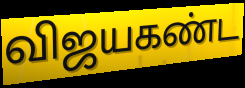
விஜயகண்ட